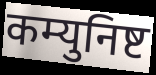
कम्युनिष्ट